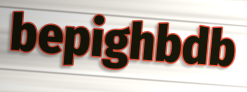
bepighbdb